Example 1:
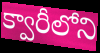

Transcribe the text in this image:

క్వారీలోని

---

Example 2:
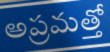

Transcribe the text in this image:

అప్రమత్తో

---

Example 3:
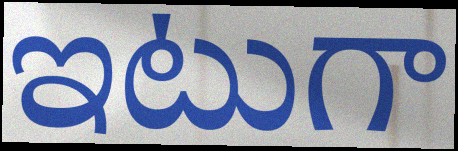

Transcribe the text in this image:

ఇటుగా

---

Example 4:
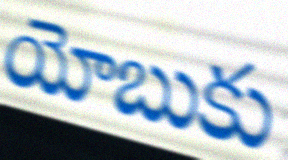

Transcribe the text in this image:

యోబుకు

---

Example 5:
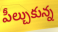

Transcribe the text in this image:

పీల్చుకున్న